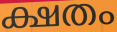
ക്ഷതം